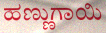
ಹಣ್ಣುಗಾಯಿ